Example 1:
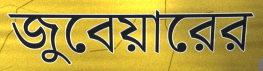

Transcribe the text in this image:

জুবেয়ারের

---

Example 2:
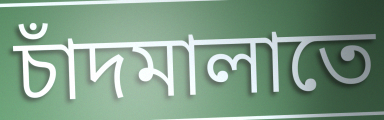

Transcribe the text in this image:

চাঁদমালাতে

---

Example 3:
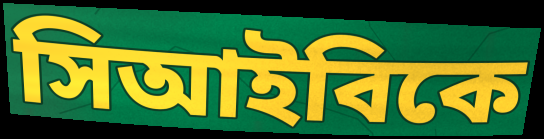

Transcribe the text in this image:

সিআইবিকে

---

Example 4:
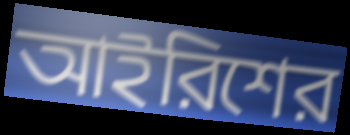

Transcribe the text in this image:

আইরিশের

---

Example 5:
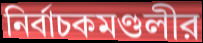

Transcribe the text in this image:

নির্বাচকমণ্ডলীর